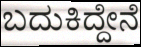
ಬದುಕಿದ್ದೇನೆ